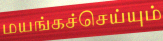
மயங்கச்செய்யும்